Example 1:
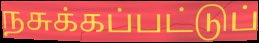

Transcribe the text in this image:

நசுக்கப்பட்டுப்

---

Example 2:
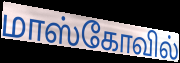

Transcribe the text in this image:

மாஸ்கோவில்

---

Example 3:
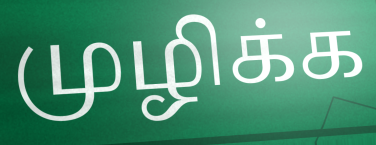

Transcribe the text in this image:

முழிக்க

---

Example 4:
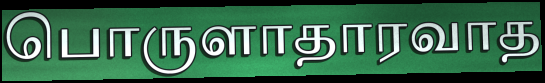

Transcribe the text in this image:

பொருளாதாரவாத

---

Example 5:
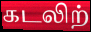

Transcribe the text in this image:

கடலிற்